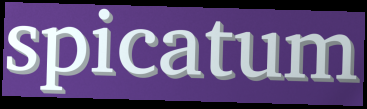
spicatum